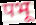
पभू